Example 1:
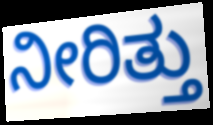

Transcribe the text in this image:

ನೀರಿತ್ತು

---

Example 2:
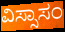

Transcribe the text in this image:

ವಿಸ್ಸಾಸಂ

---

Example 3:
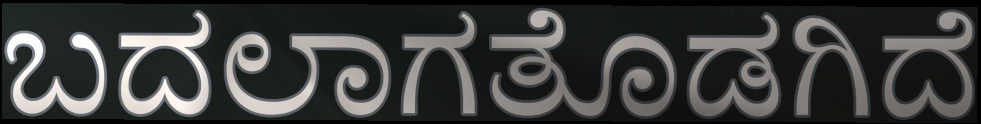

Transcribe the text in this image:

ಬದಲಾಗತೊಡಗಿದೆ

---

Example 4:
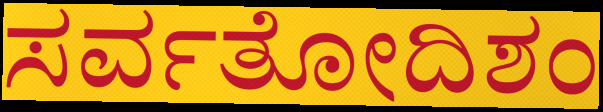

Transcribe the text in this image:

ಸರ್ವತೋದಿಶಂ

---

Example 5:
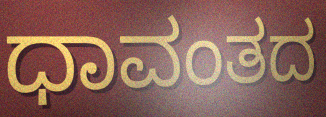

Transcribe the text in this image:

ಧಾವಂತದ